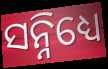
ସନ୍ନିଧ୍ୟେ